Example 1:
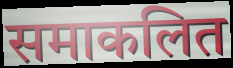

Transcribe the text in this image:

समाकलित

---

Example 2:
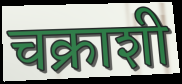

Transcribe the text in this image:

चक्राशी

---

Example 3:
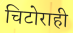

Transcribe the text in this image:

चिटोराही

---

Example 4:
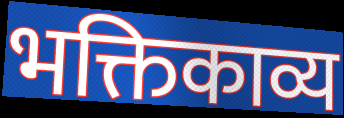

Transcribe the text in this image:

भक्तिकाव्य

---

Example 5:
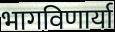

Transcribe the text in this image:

भागविणार्या